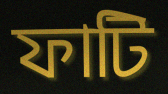
ফাটি